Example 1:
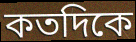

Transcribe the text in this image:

কতদিকে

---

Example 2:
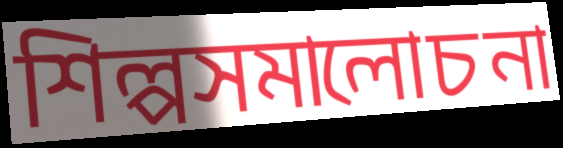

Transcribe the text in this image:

শিল্পসমালোচনা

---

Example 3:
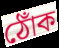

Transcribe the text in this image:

ঠোঁক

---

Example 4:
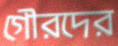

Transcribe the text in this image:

গৌরদের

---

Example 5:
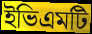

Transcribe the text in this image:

ইভিএমটি